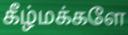
கீழ்மக்களே